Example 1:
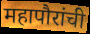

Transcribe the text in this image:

महापौरांची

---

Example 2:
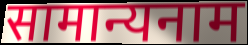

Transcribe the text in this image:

सामान्यनाम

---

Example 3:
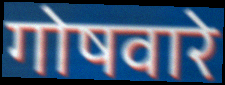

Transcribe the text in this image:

गोषवारे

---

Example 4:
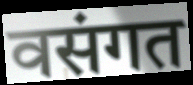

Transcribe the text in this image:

वसंगत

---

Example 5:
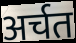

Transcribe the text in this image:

अर्चत